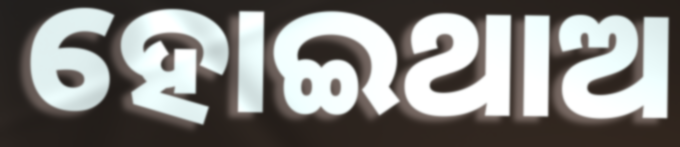
ହୋଇଥାଅ